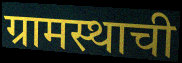
ग्रामस्थाची